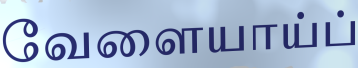
வேளையாய்ப்